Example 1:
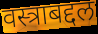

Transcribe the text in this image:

वस्त्राबद्दल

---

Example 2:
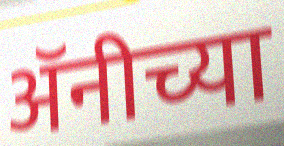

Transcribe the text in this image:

ॲनीच्या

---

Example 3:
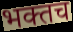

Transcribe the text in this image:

भक्तच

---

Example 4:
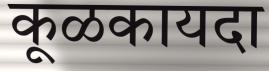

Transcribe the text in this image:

कूळकायदा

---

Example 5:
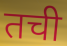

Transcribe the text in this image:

तची